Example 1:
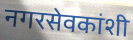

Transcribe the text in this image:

नगरसेवकांशी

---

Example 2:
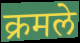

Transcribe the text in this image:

क्रमले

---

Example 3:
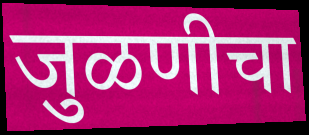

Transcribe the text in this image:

जुळणीचा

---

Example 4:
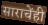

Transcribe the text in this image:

साराचेंही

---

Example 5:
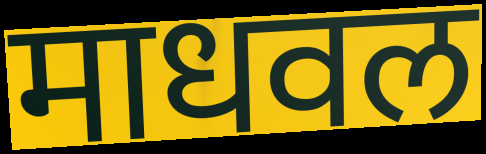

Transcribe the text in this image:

माधवल